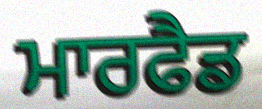
ਮਾਰਫੈਡ